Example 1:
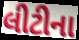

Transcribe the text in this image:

લીટીના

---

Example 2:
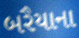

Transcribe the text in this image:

બરૈયાના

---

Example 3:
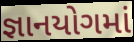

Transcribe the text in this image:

જ્ઞાનયોગમાં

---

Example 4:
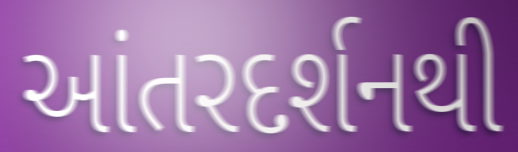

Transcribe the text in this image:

આંતરદર્શનથી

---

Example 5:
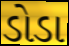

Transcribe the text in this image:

ડોડા